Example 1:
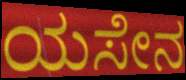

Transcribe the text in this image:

ಯಸೇನ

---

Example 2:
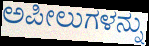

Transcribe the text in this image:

ಅಪೀಲುಗಳನ್ನು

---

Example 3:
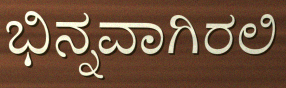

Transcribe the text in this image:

ಭಿನ್ನವಾಗಿರಲಿ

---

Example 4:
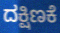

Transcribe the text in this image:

ದಕ್ಷಿಣಕೆ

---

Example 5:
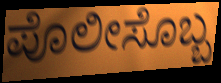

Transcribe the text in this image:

ಪೊಲೀಸೊಬ್ಬ